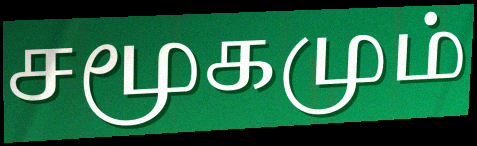
சமூகமும்